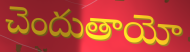
చెందుతాయో